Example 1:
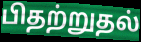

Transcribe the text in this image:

பிதற்றுதல்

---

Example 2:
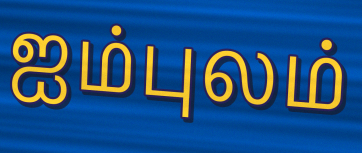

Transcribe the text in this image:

ஐம்புலம்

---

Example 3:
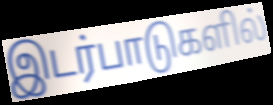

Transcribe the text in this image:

இடர்பாடுகளில்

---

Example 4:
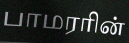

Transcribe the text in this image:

பாமரரின்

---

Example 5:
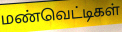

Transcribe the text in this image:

மண்வெட்டிகள்